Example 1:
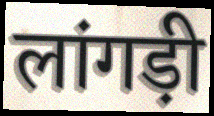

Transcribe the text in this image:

लांगड़ी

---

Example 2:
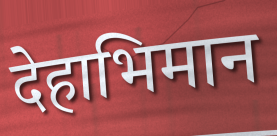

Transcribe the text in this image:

देहाभिमान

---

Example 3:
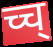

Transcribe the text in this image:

च्च्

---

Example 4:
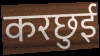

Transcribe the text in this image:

करछुई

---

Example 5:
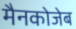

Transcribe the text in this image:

मैनकोजेब